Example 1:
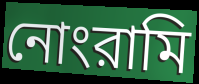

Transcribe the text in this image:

নোংরামি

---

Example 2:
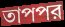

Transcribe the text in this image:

তাপপর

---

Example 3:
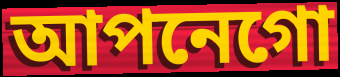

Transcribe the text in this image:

আপনেগো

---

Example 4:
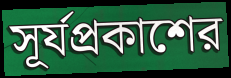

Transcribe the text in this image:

সূর্যপ্রকাশের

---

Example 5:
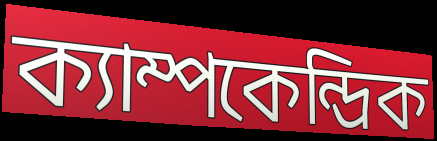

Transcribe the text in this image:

ক্যাম্পকেন্দ্রিক